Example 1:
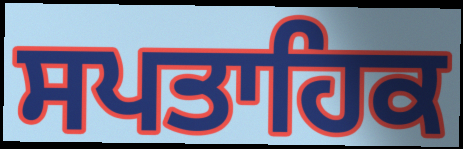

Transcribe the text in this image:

ਸਪਤਾਹਿਕ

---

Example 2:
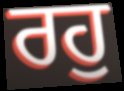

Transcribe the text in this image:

ਰਹੁ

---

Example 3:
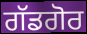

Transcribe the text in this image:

ਗੱਡਗੋਰ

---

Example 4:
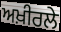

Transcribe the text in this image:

ਅਖ਼ੀਰਲੇ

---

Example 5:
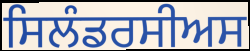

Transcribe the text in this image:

ਸਿਲੰਡਰਸੀਅਸ